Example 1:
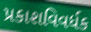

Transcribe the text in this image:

પ્રકાશવિવર્ધક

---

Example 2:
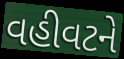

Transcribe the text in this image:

વહીવટને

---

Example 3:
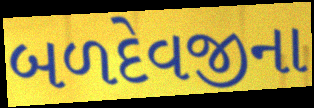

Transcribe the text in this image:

બળદેવજીના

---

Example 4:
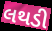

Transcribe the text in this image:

લથડી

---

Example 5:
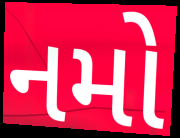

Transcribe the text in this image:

નમો